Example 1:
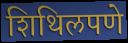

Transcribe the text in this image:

शिथिलपणे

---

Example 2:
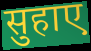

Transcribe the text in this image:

सुहाए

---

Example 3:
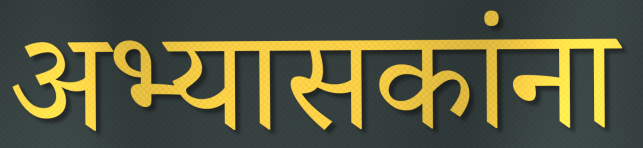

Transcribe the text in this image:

अभ्यासकांना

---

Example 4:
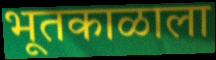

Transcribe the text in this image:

भूतकाळाला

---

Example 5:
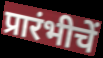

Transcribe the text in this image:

प्रारंभीचें